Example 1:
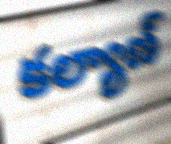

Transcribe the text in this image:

కల్యాణ్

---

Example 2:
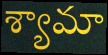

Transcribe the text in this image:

శ్యామా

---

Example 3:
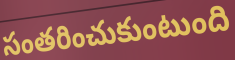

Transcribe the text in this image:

సంతరించుకుంటుంది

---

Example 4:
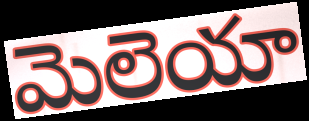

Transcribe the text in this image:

మెలెయా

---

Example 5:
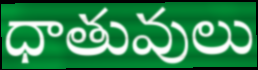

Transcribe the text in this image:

ధాతువులు